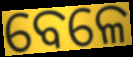
ବେଳେ